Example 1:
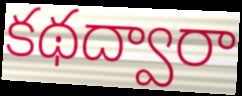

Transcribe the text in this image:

కథద్వారా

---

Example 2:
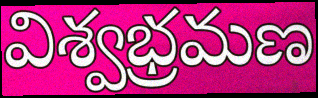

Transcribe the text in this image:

విశ్వభ్రమణ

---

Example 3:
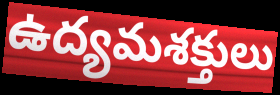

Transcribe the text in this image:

ఉద్యమశక్తులు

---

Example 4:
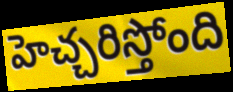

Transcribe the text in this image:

హెచ్చరిస్తోంది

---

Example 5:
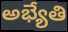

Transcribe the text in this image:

అభ్యేతి